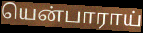
யென்பாராய்